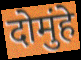
दोमुंहे